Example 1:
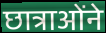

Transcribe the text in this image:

छात्राओंने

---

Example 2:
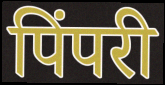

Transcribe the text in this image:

पिंपरी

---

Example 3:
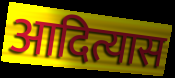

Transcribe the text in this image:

आदित्यास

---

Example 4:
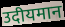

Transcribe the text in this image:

उदीयमान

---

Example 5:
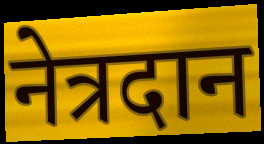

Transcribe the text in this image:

नेत्रदान